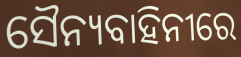
ସୈନ୍ୟବାହିନୀରେ